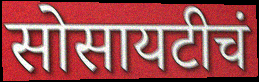
सोसायटीचं